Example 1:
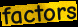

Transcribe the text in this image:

factors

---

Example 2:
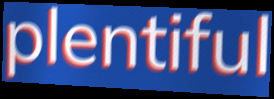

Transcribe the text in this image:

plentiful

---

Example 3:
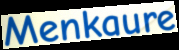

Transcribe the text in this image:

Menkaure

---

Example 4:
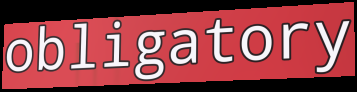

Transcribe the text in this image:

obligatory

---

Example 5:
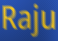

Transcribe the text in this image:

Raju